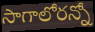
సాగాలోరన్నో